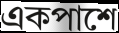
একপাশে